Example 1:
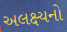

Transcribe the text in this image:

અલક્ષ્યનો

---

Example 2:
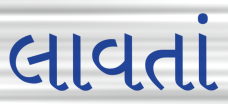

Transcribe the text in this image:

લાવતાં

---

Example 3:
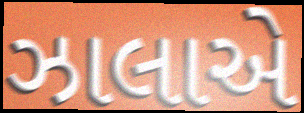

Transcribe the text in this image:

ઝાલાએ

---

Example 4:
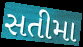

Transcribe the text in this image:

સતીમા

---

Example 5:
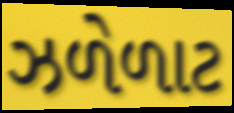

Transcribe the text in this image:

ઝળેળાટ